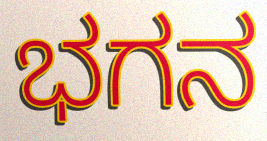
ಭಗನ